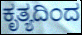
ಕೃತ್ಯದಿಂದ